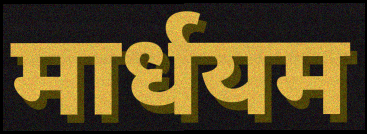
मार्धयम